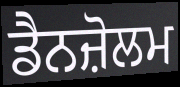
ਡੈਨਜ਼ੋਲਮ